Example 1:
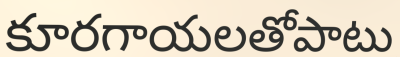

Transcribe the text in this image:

కూరగాయలతోపాటు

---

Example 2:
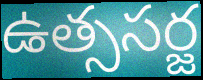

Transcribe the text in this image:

ఉత్ససర్జ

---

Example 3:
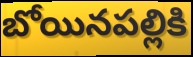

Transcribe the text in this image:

బోయినపల్లికి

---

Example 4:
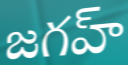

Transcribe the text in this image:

జగహ్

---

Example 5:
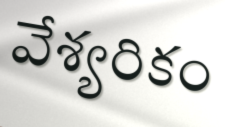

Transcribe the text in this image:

వేశ్యరికం